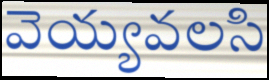
వెయ్యవలసి